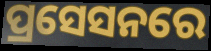
ପ୍ରସେସନରେ